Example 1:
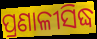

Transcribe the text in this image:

ପ୍ରଣାଳୀସିଦ୍ଧ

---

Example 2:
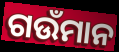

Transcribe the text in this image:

ଗଉଁମାନ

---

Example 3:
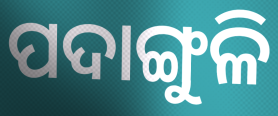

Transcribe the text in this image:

ପଦାଙ୍ଗୁଳି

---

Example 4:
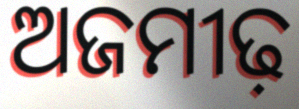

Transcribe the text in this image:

ଅଜମୀଢ଼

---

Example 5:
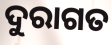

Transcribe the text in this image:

ଦୁରାଗତ